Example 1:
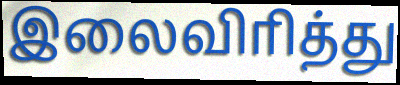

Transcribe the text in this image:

இலைவிரித்து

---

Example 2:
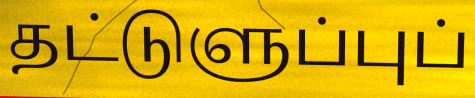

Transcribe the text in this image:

தட்டுளுப்புப்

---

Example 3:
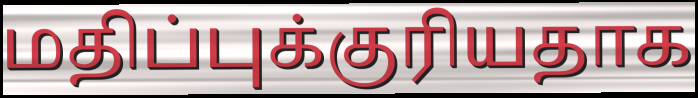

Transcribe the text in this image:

மதிப்புக்குரியதாக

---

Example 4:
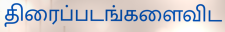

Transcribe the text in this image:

திரைப்படங்களைவிட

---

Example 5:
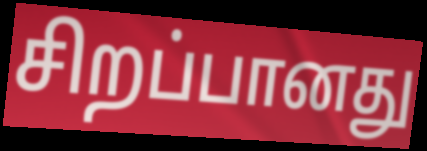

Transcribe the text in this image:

சிறப்பானது